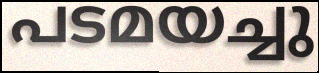
പടമയച്ചു